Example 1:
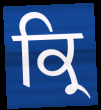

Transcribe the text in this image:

ਕ੍ਰਿ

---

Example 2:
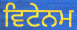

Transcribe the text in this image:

ਵਿਟੇਨਮ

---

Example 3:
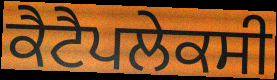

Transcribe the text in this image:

ਕੈਟੈਪਲੇਕਸੀ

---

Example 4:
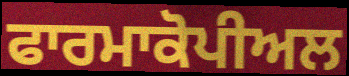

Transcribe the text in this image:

ਫਾਰਮਾਕੋਪੀਅਲ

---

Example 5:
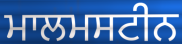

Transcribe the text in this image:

ਮਾਲਮਸਟੀਨ